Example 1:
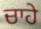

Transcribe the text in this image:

ਚਾਹੇ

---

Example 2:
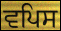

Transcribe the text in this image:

ਵਪਿਸ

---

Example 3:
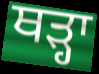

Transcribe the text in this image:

ਥੜ੍ਹਾ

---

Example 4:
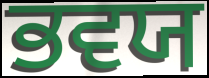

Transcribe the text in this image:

ਭਵਯ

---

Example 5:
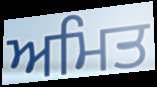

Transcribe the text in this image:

ਅਮਿਤ